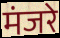
मंजरे